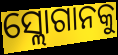
ସ୍ଲୋଗାନକୁ